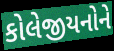
કોલેજીયનોને